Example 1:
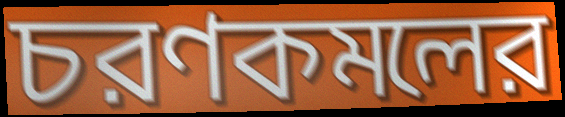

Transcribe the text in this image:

চরণকমলের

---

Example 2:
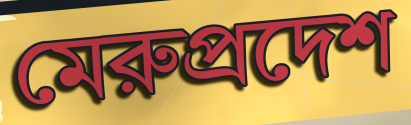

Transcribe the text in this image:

মেরুপ্রদেশ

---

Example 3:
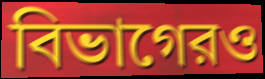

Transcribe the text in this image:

বিভাগেরও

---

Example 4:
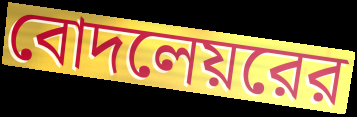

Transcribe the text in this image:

বোদলেয়রের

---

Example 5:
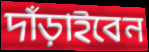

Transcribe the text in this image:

দাঁড়াইবেন